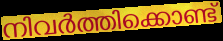
നിവർത്തിക്കൊണ്ട്